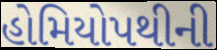
હોમિયોપથીની